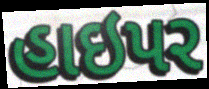
હાઇપર